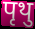
पृथु